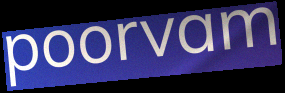
poorvam